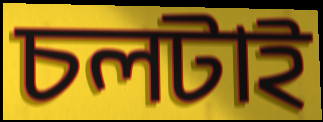
চলটাই